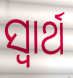
ସ୍ୱାର୍ଥ